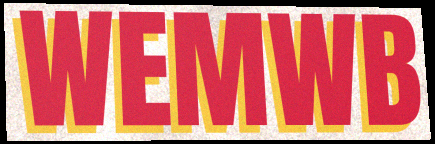
WEMWB